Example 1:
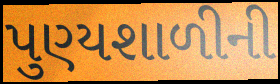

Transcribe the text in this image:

પુણ્યશાળીની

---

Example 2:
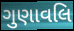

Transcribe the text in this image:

ગુણાવલિ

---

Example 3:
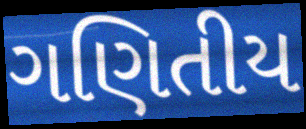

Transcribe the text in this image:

ગણિતીય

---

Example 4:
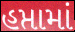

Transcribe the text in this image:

હપ્તામાં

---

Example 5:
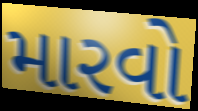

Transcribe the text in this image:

મારવો